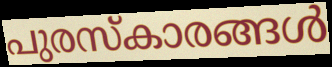
പുരസ്കാരങ്ങൾ